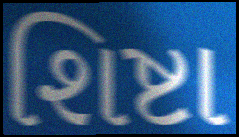
શિષ્ટા